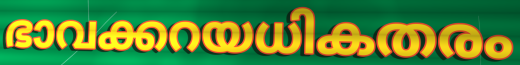
ഭാവക്കറയധികതരം